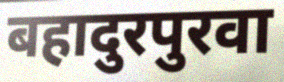
बहादुरपुरवा